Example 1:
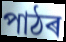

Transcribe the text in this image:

পাঠৰ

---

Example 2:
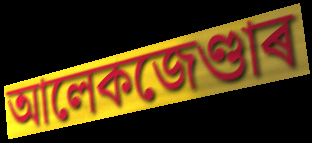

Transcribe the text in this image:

আলেকজেণ্ডাৰ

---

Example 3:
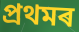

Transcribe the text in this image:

প্ৰথমৰ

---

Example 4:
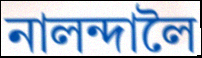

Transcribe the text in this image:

নালন্দালৈ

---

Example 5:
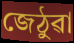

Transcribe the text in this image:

জেঠুৱা